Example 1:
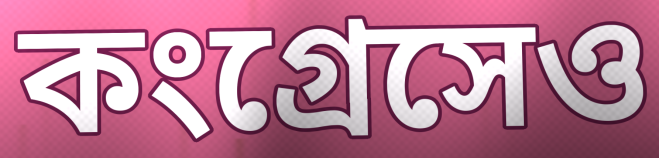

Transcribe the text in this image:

কংগ্রেসেও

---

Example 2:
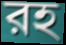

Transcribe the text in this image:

রহ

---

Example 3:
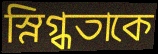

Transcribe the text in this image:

স্নিগ্ধতাকে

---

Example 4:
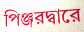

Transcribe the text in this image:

পিঞ্জরদ্বারে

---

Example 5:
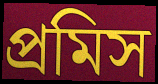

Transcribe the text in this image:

প্রমিস